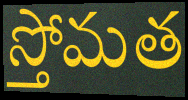
స్తోమత